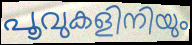
പൂവുകളിനിയും